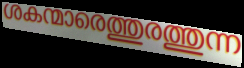
ശകന്മാരെത്തുരത്തുന്ന